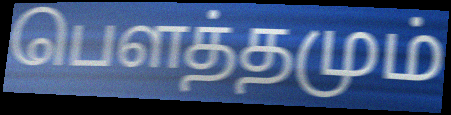
பௌத்தமும்